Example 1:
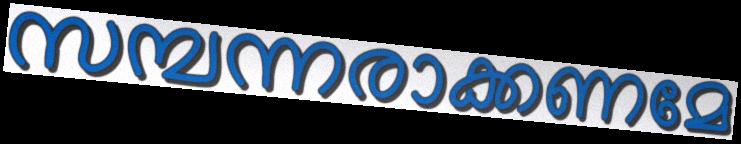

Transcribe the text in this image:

സമ്പന്നരാക്കണമേ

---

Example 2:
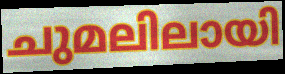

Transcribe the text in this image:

ചുമലിലായി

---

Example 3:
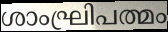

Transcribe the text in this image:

ശാംഘ്രിപത്മം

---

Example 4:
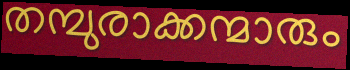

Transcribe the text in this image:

തമ്പുരാക്കന്മാരും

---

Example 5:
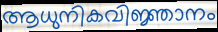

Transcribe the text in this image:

ആധുനികവിജ്ഞാനം